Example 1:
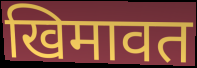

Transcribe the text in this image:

खिमावत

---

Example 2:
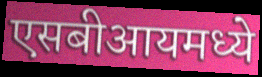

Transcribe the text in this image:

एसबीआयमध्ये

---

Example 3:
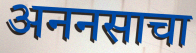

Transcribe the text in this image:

अननसाचा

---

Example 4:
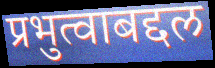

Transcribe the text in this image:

प्रभुत्वाबद्दल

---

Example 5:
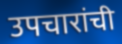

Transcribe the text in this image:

उपचारांची